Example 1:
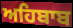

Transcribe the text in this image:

ਅਹਿਬਾਬ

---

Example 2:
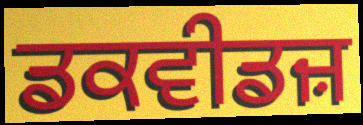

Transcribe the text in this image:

ਡਕਵੀਡਜ਼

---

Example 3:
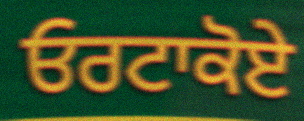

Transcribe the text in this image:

ਓਰਟਾਕੋਏ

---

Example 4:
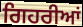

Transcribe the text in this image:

ਗਿਹਰੀਆਂ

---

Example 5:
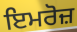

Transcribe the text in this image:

ਇਮਰੋਜ਼